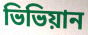
ভিভিয়ান